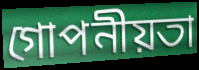
গোপনীয়তা